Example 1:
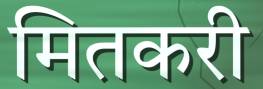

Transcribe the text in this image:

मितकरी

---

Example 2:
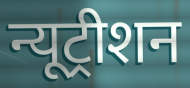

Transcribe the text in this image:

न्यूट्रीशन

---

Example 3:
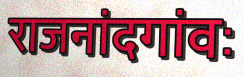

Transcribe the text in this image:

राजनांदगांवः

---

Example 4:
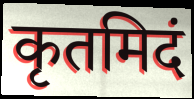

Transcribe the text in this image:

कृतमिदं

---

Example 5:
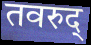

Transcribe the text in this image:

तवरुद्